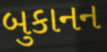
બુકાનન